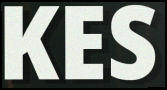
KES